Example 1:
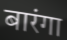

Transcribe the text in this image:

बारंगा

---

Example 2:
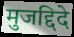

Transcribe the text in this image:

मुजद्दिदे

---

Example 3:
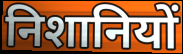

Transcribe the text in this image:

निशानियों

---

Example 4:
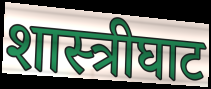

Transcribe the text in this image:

शास्त्रीघाट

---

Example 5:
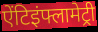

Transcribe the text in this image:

ऐंटिइंफ्लामेट्री